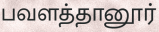
பவளத்தானூர்